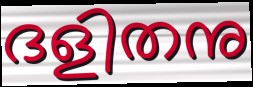
ദളിതനു